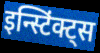
इन्स्टिंक्ट्स